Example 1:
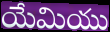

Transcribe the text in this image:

యేమియు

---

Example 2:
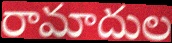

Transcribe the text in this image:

రామాదుల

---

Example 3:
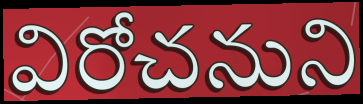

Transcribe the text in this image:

విరోచనుని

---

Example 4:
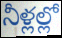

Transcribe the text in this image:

నీళ్లల్లో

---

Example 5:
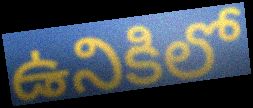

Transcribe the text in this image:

ఉనికిలో